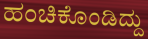
ಹಂಚಿಕೊಂಡಿದ್ದು